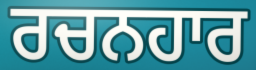
ਰਚਨਹਾਰ